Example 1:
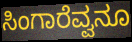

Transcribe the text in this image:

ಸಿಂಗಾರೆವ್ವನೂ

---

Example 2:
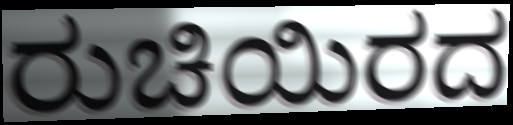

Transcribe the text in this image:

ರುಚಿಯಿರದ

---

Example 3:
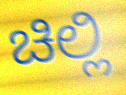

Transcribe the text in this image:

ಚಿಲ್ಲಿ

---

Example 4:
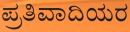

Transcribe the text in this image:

ಪ್ರತಿವಾದಿಯರ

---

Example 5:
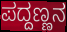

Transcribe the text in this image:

ಪದ್ದಣ್ಣನ